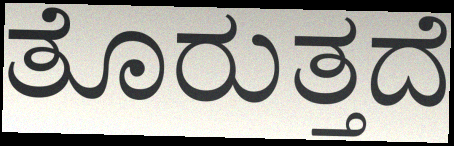
ತೊರುತ್ತದೆ